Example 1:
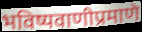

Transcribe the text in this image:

भविष्यवाणीप्रमाणे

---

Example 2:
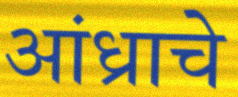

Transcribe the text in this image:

आंध्राचे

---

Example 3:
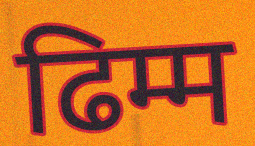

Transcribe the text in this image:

ढिम्म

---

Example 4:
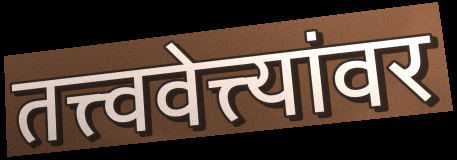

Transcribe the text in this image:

तत्त्ववेत्त्यांवर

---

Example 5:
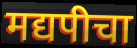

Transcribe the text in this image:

मद्यपीचा